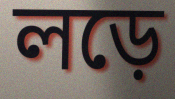
লড়ে